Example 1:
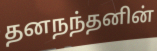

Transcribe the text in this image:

தனநந்தனின்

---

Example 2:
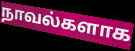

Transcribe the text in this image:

நாவல்களாக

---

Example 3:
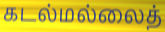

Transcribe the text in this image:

கடல்மல்லைத்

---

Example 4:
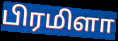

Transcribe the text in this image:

பிரமிளா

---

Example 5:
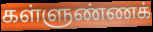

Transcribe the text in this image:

கள்ளுண்ணக்